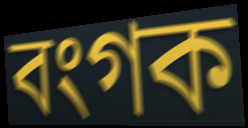
বংগক